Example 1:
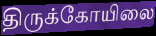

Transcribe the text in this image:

திருக்கோயிலை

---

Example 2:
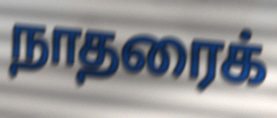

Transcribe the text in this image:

நாதரைக்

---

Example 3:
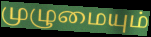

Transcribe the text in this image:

முழுமையும்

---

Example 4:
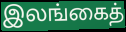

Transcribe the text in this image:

இலங்கைத்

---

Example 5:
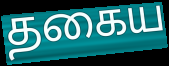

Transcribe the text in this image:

தகைய